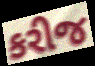
કરીજ